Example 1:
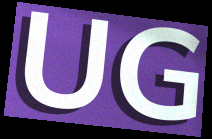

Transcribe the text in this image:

UG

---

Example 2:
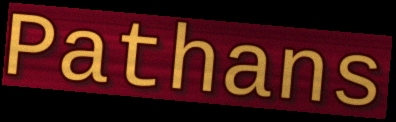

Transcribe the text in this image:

Pathans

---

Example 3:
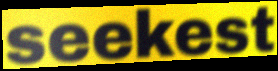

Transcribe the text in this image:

seekest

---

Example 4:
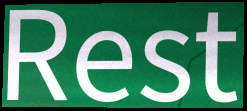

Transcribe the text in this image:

Rest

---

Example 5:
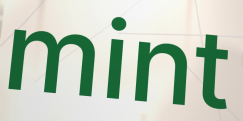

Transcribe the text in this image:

mint